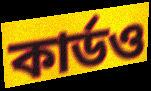
কার্ডও